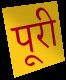
पूरी